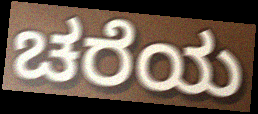
ಚರೆಯ